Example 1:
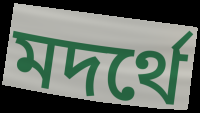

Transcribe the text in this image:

মদর্থে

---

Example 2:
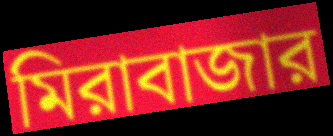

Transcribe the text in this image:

মিরাবাজার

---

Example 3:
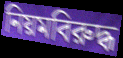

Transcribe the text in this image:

নিয়মবিরুদ্ধ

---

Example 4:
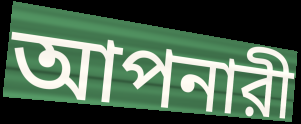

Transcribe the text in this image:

আপনারী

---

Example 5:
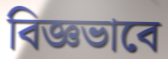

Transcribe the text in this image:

বিজ্ঞভাবে